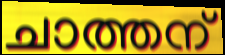
ചാത്തന്